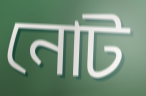
নোট